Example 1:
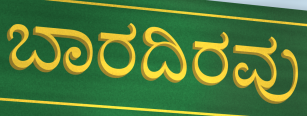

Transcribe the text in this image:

ಬಾರದಿರವು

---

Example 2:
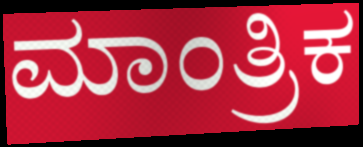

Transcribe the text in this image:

ಮಾಂತ್ರಿಕ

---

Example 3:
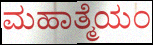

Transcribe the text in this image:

ಮಹಾತ್ಮೆಯಂ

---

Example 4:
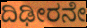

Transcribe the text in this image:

ದಿಢೀರನೇ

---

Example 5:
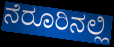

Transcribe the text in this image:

ನೆರೂರಿನಲ್ಲಿ